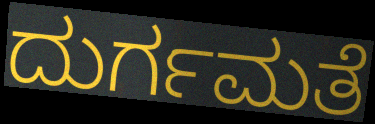
ದುರ್ಗಮತೆ